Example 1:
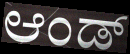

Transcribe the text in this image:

ಆಂಡ್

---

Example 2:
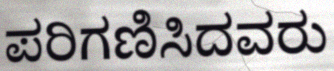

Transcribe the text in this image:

ಪರಿಗಣಿಸಿದವರು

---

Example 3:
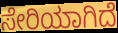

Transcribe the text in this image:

ಸೇರಿಯಾಗಿದೆ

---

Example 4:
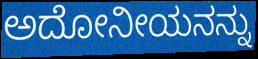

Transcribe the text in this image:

ಅದೋನೀಯನನ್ನು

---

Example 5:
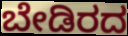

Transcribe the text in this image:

ಬೇಡಿರದ